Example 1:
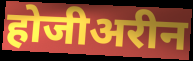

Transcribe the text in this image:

होजीअरीन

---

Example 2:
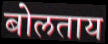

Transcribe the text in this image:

बोलताय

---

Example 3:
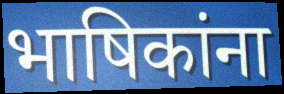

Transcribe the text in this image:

भाषिकांना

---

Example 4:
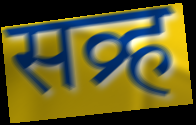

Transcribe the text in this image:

सव्र्ह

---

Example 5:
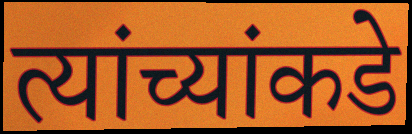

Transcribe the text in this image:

त्यांच्यांकडे